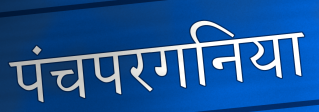
पंचपरगनिया